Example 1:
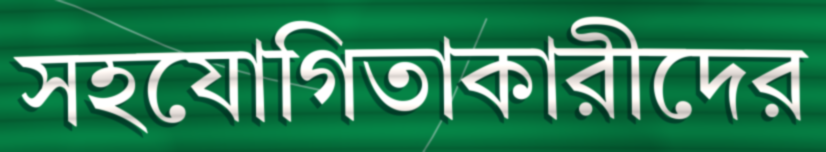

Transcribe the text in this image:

সহযোগিতাকারীদের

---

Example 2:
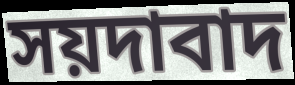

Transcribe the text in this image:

সয়দাবাদ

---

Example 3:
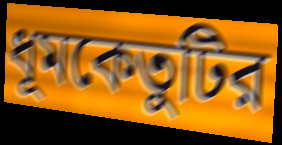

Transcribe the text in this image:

ধূমকেতুটির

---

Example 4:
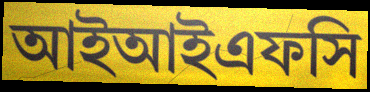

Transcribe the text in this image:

আইআইএফসি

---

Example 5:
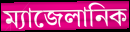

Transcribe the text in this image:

ম্যাজেলানিক